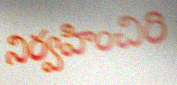
నిర్వహించిరి